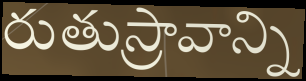
రుతుస్రావాన్ని